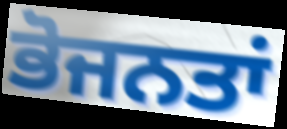
ਭੋਜਨਤਾਂ